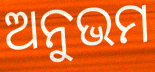
ଅନୁଭମ